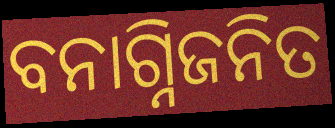
ବନାଗ୍ନିଜନିତ